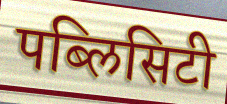
पब्लिसिटी